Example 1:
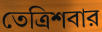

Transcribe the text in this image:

তেত্রিশবার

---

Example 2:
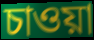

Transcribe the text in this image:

চাওয়া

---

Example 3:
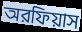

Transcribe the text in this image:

অরফিয়াস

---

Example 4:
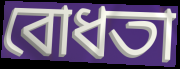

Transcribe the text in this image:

বোধতা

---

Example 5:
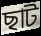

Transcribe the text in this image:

ছাট